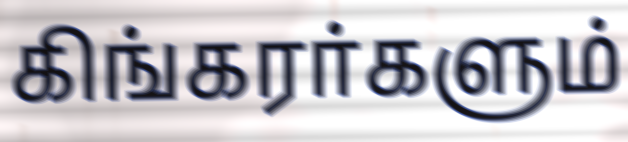
கிங்கரர்களும்